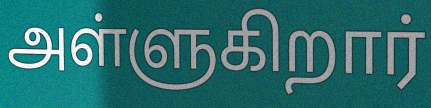
அள்ளுகிறார்